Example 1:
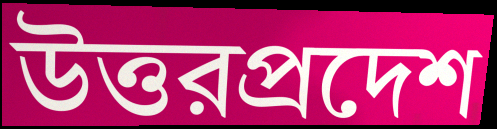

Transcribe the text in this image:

উত্তরপ্রদেশ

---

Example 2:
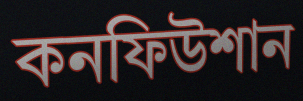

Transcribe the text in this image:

কনফিউশান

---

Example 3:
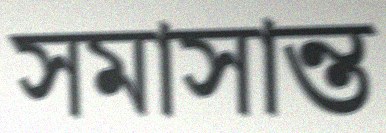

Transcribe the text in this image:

সমাসান্ত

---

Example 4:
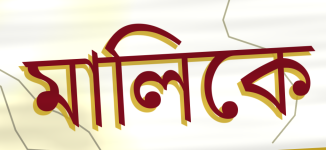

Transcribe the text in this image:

মালিকে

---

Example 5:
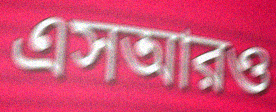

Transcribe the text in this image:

এসআরও